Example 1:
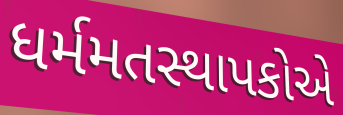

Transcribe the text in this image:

ધર્મમતસ્થાપકોએ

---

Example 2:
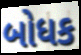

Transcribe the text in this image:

બોધક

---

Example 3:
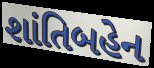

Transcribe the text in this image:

શાંતિબહેન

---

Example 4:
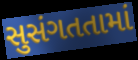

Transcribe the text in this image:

સુસંગતતામાં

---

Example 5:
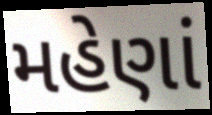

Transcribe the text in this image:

મહેણાં